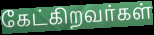
கேட்கிறவர்கள்